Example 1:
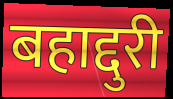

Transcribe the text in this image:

बहाद्दुरी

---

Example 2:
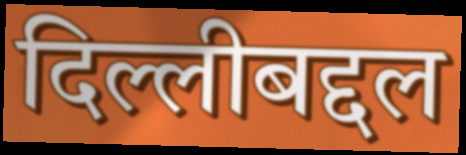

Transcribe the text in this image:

दिल्लीबद्दल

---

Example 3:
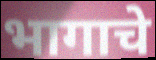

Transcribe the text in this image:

भागाचे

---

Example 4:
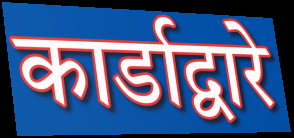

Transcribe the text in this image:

कार्डाद्वारे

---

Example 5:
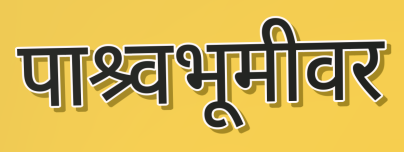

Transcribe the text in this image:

पाश्र्वभूमीवर